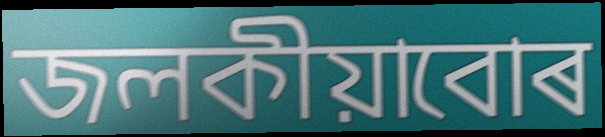
জলকীয়াবোৰ